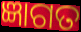
ଜ୍ଞାଗତ